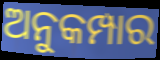
ଅନୁକମ୍ପାର